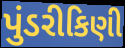
પુંડરીકિણી